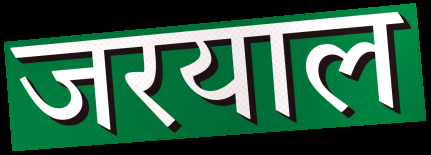
जरयाल